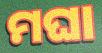
ମଘା